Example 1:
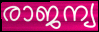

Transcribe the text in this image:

രാജന്യ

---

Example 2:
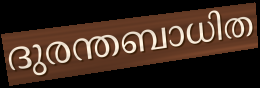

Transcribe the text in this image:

ദുരന്തബാധിത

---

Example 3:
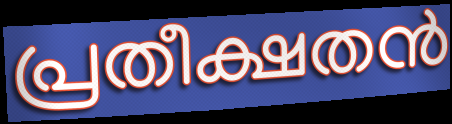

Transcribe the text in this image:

പ്രതീക്ഷതൻ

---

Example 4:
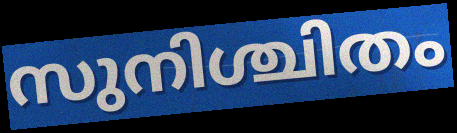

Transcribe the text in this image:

സുനിശ്ചിതം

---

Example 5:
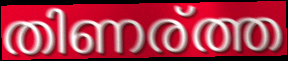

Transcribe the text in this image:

തിണര്ത്ത